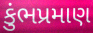
કુંભપ્રમાણ